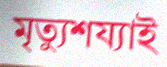
মৃত্যুশয্যাই